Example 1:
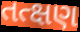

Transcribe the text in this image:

તત્ક્ષણ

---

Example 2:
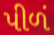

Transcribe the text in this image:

પીળં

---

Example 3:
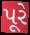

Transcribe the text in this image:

પૂરે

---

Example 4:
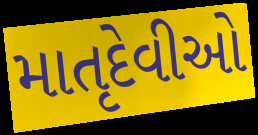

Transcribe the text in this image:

માતૃદેવીઓ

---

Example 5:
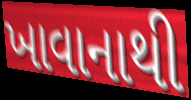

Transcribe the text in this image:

ખાવાનાથી